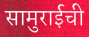
सामुराईची